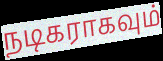
நடிகராகவும்